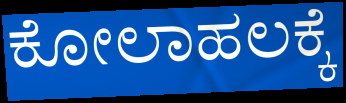
ಕೋಲಾಹಲಕ್ಕೆ